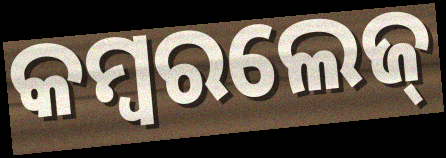
କମ୍ବରଲେଜ୍